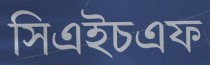
সিএইচএফ